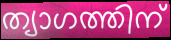
ത്യാഗത്തിന്